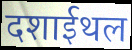
दशाईथल